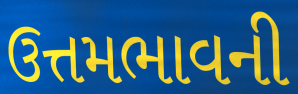
ઉત્તમભાવની